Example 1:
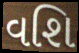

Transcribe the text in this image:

વશિ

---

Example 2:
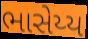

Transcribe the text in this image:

ભાસેય્ય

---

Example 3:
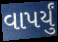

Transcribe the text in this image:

વાપર્યું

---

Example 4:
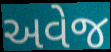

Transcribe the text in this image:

અવેજ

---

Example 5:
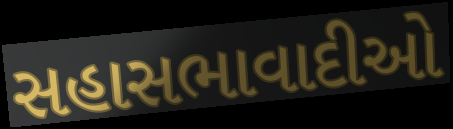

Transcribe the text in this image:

સહાસભાવાદીઓ